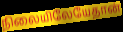
நிலையிலேயேதான்